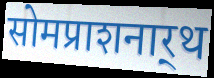
सोमप्राशनार्थ